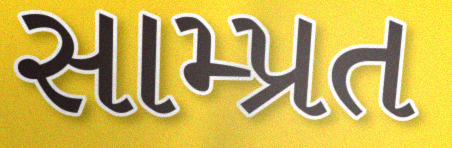
સામ્પ્રત